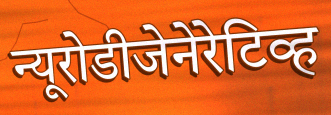
न्यूरोडीजेनेरेटिव्ह